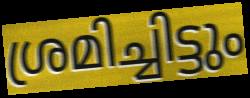
ശ്രമിച്ചിട്ടും